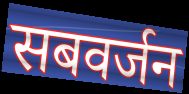
सबवर्जन